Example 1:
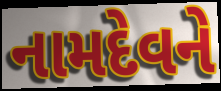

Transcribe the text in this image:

નામદેવને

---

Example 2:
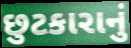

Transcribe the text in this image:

છુટકારાનું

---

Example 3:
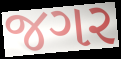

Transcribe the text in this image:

જગર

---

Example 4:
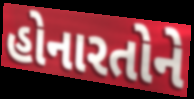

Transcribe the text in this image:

હોનારતોને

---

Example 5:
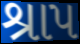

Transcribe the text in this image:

શ્રાપ